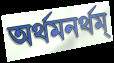
অর্থমনর্থম্